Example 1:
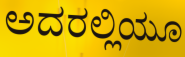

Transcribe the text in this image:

ಅದರಲ್ಲಿಯೂ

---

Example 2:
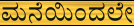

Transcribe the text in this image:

ಮನೆಯಿಂದಲೇ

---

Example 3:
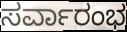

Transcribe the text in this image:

ಸರ್ವಾರಂಭ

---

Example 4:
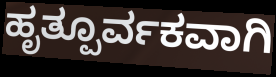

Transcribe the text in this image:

ಹೃತ್ಪೂರ್ವಕವಾಗಿ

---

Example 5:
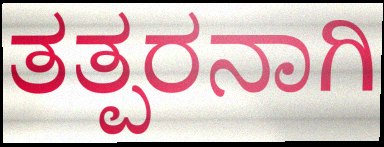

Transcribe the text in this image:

ತತ್ಪರನಾಗಿ